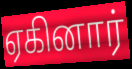
ஏகினார்